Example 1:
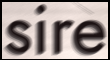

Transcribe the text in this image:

sire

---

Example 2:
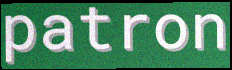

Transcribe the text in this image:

patron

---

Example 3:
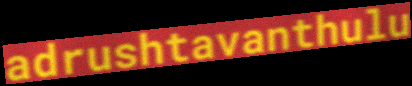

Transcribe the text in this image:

adrushtavanthulu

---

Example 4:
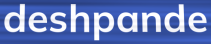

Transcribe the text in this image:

deshpande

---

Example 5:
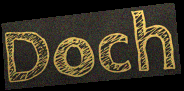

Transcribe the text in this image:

Doch